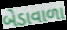
બેડાવાળા